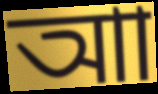
আা